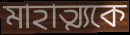
মাহাত্ম্যকে